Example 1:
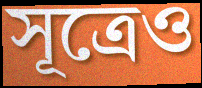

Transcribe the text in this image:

সূত্রেও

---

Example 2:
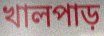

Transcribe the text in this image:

খালপাড়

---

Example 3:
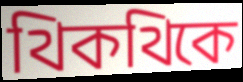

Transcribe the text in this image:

থিকথিকে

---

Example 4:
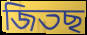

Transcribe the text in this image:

জিতছ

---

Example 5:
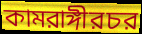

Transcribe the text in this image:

কামরাঙ্গীরচর